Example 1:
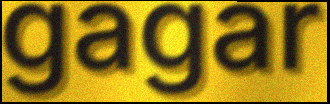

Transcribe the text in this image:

gagar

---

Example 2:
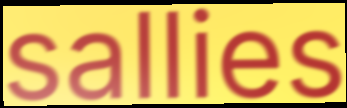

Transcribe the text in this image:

sallies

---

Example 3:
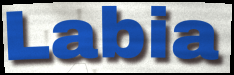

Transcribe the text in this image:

Labia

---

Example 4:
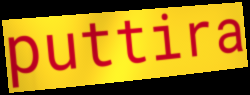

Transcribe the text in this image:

puttira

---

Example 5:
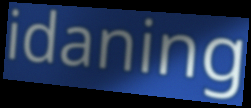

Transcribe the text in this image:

idaning